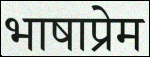
भाषाप्रेम